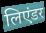
लिएंडर